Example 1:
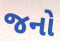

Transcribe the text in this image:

જનો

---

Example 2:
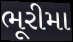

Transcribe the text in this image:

ભૂરીમા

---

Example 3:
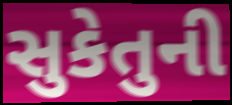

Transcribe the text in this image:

સુકેતુની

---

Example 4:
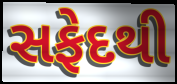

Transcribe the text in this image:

સફેદથી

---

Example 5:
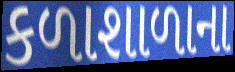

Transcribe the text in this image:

કળાશાળાના